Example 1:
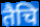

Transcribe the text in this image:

तैचि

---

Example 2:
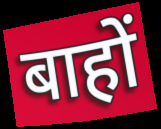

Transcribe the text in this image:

बाहों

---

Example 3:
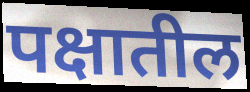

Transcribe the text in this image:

पक्षातील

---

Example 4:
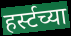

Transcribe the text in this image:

हर्स्टच्या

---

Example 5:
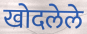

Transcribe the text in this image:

खोदलेले